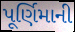
પૂર્ણિમાની